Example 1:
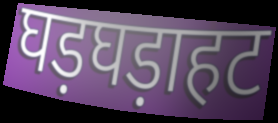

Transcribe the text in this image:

घड़घड़ाहट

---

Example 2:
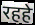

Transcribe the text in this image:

रहहे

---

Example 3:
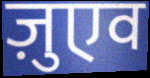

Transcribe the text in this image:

ज़ुएव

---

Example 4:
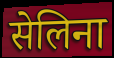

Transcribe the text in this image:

सेलिना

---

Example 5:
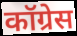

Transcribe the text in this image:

कॉग्रेस